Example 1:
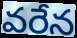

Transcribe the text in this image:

వరేన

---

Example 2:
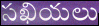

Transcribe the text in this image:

సఖియలు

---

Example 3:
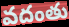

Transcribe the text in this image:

వదంతు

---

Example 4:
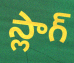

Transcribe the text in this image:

స్లాగ్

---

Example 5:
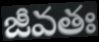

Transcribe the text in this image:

జీవతః